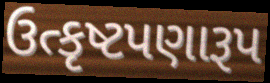
ઉત્કૃષ્ટપણારૂપ